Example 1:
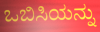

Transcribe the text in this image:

ಒಬಿಸಿಯನ್ನು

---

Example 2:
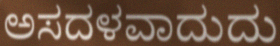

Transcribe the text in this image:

ಅಸದಳವಾದುದು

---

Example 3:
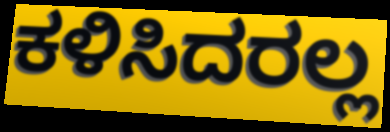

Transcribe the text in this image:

ಕಳಿಸಿದರಲ್ಲ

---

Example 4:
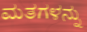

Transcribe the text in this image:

ಮತಗಳನ್ನು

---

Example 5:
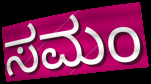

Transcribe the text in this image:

ಸಮಂ